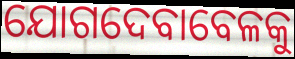
ଯୋଗଦେବାବେଳକୁ